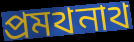
প্রমথনাথ